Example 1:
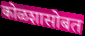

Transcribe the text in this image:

कोळशासोबत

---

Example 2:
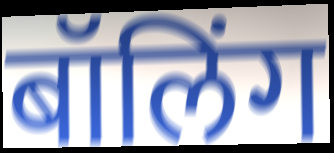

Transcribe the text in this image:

बॉलिंग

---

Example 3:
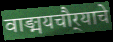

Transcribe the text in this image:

वाङ्मयचौर्याचे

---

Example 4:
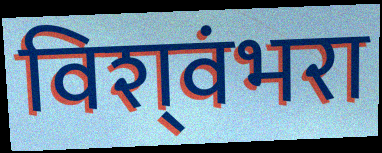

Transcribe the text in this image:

विश्वंभरा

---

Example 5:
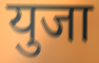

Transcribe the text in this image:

युजा